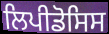
ਲਿਪੀਡੋਸਿਸ